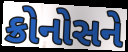
ક્રોનોસને